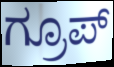
ಗ್ರೂಪ್